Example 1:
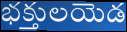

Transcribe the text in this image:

భక్తులయెడ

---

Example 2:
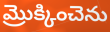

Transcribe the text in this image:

మ్రొక్కించెను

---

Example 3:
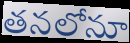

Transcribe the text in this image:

తనలోనూ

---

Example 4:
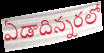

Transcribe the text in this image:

ఏడాదిన్నరలో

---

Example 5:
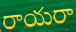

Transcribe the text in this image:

రాయరా